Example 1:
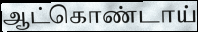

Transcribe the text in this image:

ஆட்கொண்டாய்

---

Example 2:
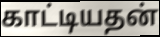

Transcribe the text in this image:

காட்டியதன்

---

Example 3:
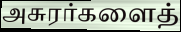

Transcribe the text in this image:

அசுரர்களைத்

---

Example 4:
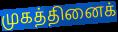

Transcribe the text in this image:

முகத்தினைக்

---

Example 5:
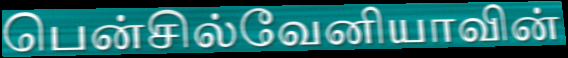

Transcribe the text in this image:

பென்சில்வேனியாவின்